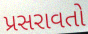
પ્રસરાવતો